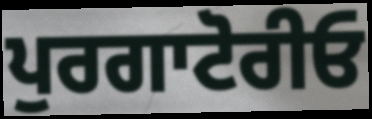
ਪੁਰਗਾਟੋਰੀਓ